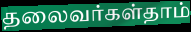
தலைவர்கள்தாம்